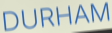
DURHAM